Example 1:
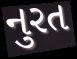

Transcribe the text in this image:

નુરત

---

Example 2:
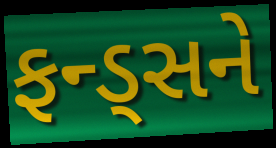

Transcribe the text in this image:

ફન્ડ્સને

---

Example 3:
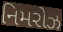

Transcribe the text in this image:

નિમરોઝ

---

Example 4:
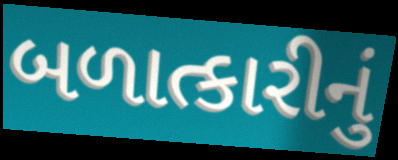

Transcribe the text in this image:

બળાત્કારીનું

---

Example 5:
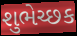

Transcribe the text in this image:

શુભેચ્છક